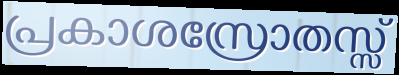
പ്രകാശസ്രോതസ്സ്